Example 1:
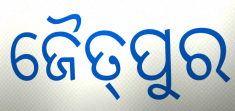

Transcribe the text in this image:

ଜୈତ୍‌ପୁର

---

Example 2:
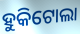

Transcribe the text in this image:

ହୁକିଟୋଲା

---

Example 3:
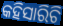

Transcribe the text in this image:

କହିସାରିଚି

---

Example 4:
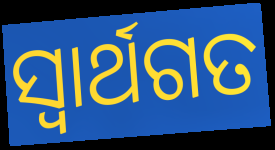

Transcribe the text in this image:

ସ୍ୱାର୍ଥଗତ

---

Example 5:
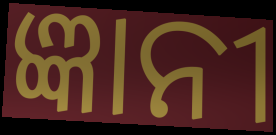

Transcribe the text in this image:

ଜ୍ଞାନୀ